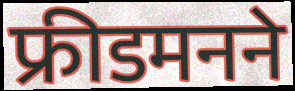
फ्रीडमनने